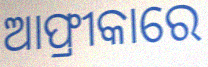
ଆଫ୍ରୀକାରେ